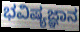
ಭವಿಷ್ಯಜ್ಞಾನ